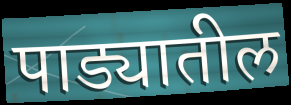
पाड्यातील